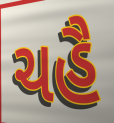
ચહૈ